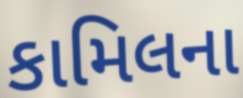
કામિલના